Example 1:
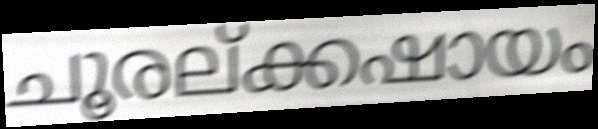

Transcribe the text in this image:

ചൂരല്ക്കഷായം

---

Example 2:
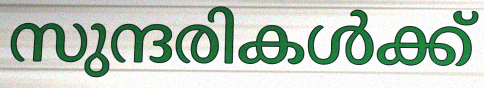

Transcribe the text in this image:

സുന്ദരികൾക്ക്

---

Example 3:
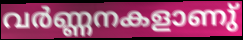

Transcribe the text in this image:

വർണ്ണനകളാണു്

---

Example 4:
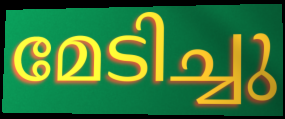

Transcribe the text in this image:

മേടിച്ചു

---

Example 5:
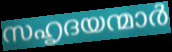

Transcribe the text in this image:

സഹൃദയന്മാർ